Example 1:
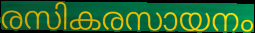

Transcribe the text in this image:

രസികരസായനം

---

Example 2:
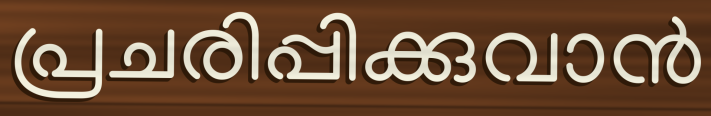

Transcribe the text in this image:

പ്രചരിപ്പിക്കുവാൻ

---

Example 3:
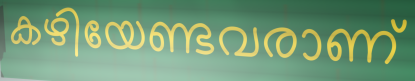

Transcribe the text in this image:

കഴിയേണ്ടവരാണ്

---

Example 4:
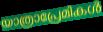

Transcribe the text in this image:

യാത്രാപ്രേമികൾ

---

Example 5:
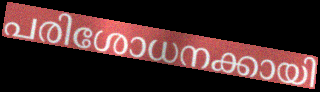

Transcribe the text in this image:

പരിശോധനക്കായി